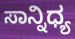
ಸಾನ್ನಿಧ್ಯ